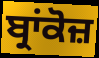
ਬ੍ਰਾਂਕੋਜ਼